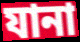
যানা